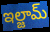
ఇల్జామ్